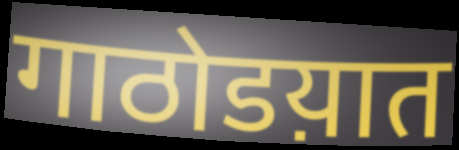
गाठोडय़ात